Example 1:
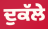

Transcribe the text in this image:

ਦੁਕੱਲੇ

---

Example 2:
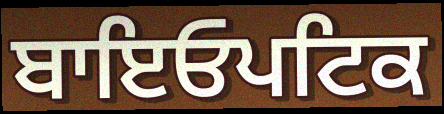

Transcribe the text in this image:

ਬਾਇਓਪਟਿਕ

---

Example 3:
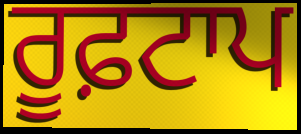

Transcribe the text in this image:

ਰੂਫ਼ਟਾਪ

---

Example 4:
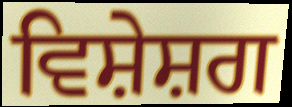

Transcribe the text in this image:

ਵਿਸ਼ੇਸ਼ਗ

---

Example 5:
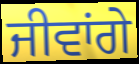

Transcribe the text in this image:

ਜੀਵਾਂਗੇ